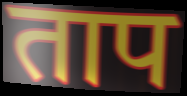
ताप